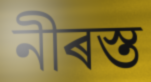
নীৰস্ত